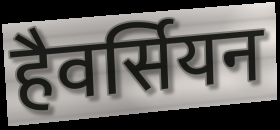
हैवर्सियन